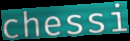
chessi